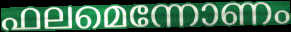
ഫലമെന്നോണം